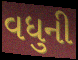
વધુની